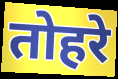
तोहरे